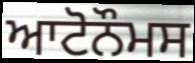
ਆਟੋਨੌਮਸ